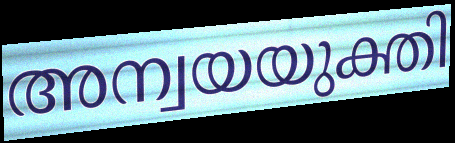
അന്വയയുക്തി